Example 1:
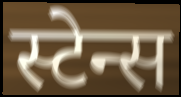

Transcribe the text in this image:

स्टेन्स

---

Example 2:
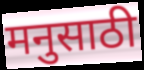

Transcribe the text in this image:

मनुसाठी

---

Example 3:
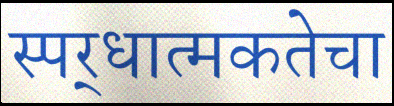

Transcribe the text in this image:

स्पर्धात्मकतेचा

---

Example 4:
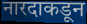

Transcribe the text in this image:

नारदाकडून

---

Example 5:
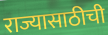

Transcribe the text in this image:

राज्यासाठीची